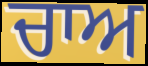
ਚਾਅ